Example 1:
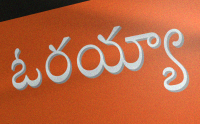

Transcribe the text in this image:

ఓరయ్యా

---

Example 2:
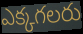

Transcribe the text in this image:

ఎక్కగలరు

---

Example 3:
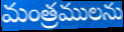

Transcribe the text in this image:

మంత్రములను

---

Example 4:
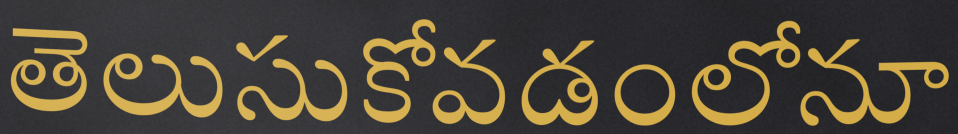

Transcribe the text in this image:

తెలుసుకోవడంలోనూ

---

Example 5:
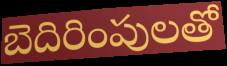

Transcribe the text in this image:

బెదిరింపులతో